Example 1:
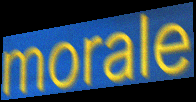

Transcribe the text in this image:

morale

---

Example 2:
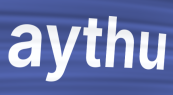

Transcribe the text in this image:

aythu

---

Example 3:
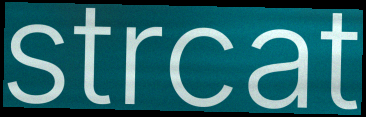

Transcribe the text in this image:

strcat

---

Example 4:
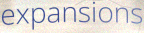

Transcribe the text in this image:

expansions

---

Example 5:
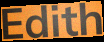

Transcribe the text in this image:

Edith